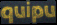
quipu